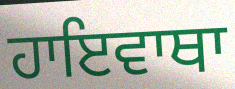
ਹਾਇਵਾਥਾ